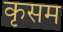
कृसम